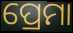
ପ୍ରେମା